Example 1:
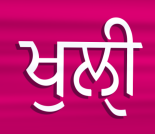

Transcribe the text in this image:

ਖੁਲੀੑ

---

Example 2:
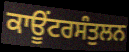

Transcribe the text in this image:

ਕਾਊਂਟਰਸੰਤੁਲਨ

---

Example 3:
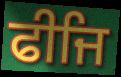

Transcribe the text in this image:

ਫੀਜਿ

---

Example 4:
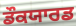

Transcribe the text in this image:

ਡੌਕਯਾਰਡ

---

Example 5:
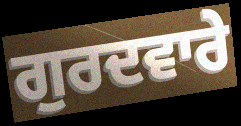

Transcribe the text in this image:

ਗੁਰਦਵਾਰੇ